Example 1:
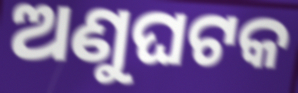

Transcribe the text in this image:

ଅଣୁଘଟକ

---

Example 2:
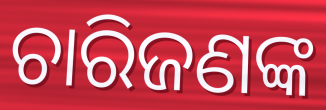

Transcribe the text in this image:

ଚାରିଜଣଙ୍କ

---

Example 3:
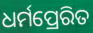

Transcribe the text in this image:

ଧର୍ମପ୍ରେରିତ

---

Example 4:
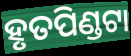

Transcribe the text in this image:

ହୃତପିଣ୍ଡଟା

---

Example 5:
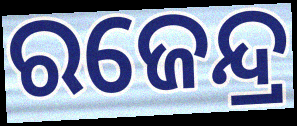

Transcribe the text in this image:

ରଜେନ୍ଦ୍ର